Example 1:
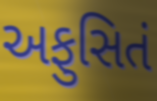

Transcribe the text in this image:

અફુસિતં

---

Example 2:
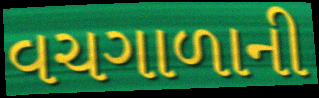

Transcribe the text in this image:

વચગાળાની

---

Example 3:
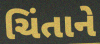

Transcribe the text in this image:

ચિંતાને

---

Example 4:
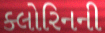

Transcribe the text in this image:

ક્લોરિનની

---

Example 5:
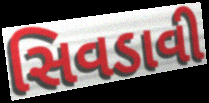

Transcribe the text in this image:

સિવડાવી